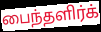
பைந்தளிர்க்